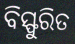
ବିସ୍ଫୁରିତ